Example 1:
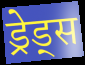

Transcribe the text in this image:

ड्रेड्स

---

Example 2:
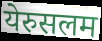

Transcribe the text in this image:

येरुसलम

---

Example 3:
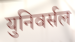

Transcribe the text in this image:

युनिवर्सल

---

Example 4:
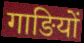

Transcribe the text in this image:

गाङियों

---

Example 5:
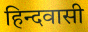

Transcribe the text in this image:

हिन्दवासी